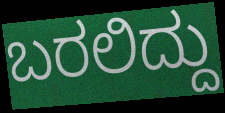
ಬರಲಿದ್ದು